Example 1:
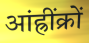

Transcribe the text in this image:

आंह्रींक्रों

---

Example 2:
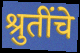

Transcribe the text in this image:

श्रुतींचे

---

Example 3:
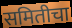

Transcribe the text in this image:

समितीचा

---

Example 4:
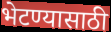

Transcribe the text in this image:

भेटण्यासाठी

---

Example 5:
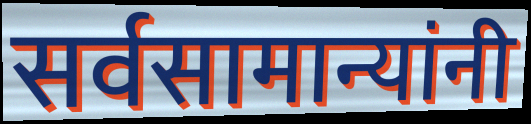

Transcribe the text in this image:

सर्वसामान्यांनी